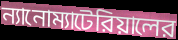
ন্যানোম্যাটেরিয়ালের